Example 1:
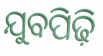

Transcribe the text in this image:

ଯୁବପିଢ଼ି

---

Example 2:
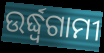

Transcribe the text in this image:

ଉର୍ଦ୍ଧ୍ୱଗାମୀ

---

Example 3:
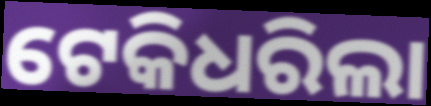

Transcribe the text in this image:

ଟେକିଧରିଲା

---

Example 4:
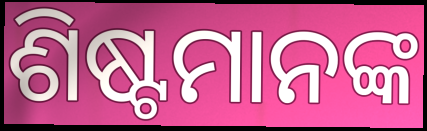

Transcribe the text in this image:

ଶିଷ୍ଟମାନଙ୍କ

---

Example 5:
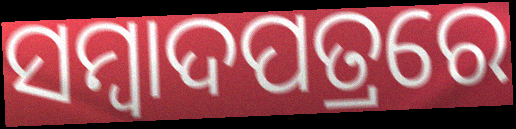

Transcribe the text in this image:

ସମ୍ୱାଦପତ୍ରରେ